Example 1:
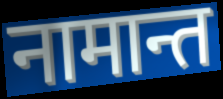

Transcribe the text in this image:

नामान्त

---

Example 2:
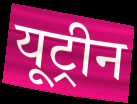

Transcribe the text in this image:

यूट्रीन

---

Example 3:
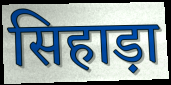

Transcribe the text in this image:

सिहाड़ा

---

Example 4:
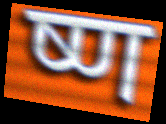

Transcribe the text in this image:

ष्ण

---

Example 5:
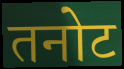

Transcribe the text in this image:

तनोट